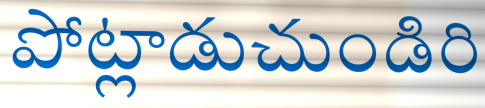
పోట్లాడుచుండిరి